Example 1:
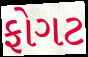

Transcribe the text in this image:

ફોગટ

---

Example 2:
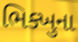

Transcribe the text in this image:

ભિક્ખુના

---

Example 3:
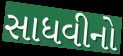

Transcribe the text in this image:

સાધવીનો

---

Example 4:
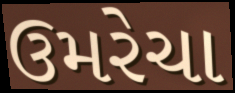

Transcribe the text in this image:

ઉમરેચા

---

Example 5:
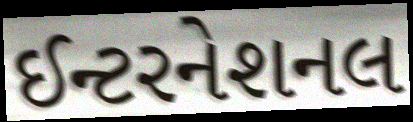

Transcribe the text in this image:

ઈન્ટરનેશનલ